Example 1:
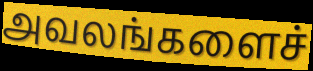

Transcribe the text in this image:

அவலங்களைச்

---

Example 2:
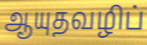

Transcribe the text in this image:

ஆயுதவழிப்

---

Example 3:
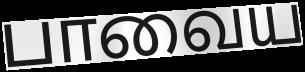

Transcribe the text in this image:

பாவைய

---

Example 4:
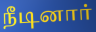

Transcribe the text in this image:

நீடினார்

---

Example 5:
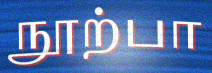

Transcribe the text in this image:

நூற்பா